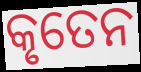
କୃତେନ